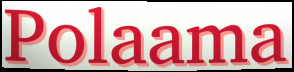
Polaama